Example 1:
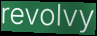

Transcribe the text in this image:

revolvy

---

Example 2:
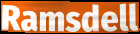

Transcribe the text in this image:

Ramsdell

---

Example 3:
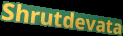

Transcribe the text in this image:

Shrutdevata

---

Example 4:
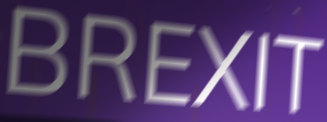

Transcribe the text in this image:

BREXIT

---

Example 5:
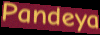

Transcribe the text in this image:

Pandeya